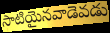
సాటియైనవాడెవడు